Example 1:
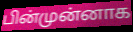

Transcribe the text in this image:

பின்முன்னாக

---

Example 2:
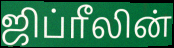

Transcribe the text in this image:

ஜிப்ரீலின்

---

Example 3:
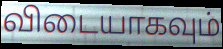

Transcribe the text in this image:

விடையாகவும்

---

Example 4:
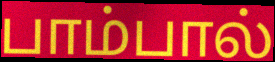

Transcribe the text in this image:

பாம்பால்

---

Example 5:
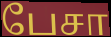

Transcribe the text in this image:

பேசா